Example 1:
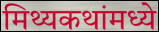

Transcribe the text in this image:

मिथ्यकथांमध्ये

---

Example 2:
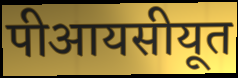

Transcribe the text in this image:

पीआयसीयूत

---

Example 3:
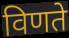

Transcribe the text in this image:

विणते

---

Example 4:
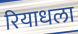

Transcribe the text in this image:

रियाधला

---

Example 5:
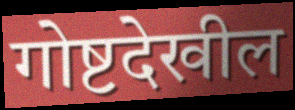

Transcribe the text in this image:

गोष्टदेखील